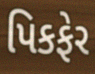
પિકફેર